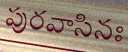
పురవాసినః